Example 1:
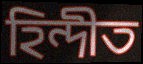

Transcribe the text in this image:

হিন্দীত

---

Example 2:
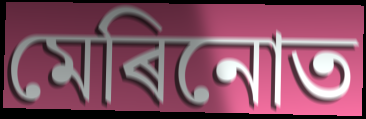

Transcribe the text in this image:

মেৰিনোত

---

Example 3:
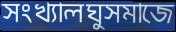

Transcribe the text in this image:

সংখ্যালঘুসমাজে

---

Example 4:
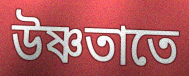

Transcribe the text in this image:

উষ্ণতাতে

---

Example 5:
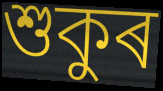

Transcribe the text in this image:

শুকুৰ